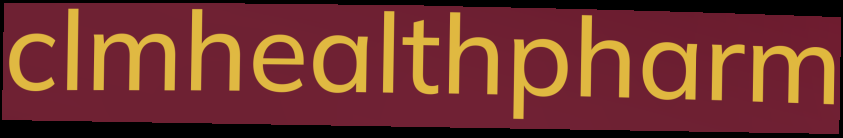
clmhealthpharm